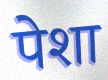
पेशा